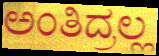
ಅಂತಿದ್ರಲ್ಲ